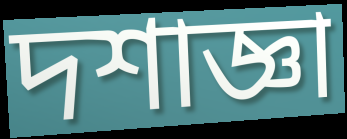
দশাজ্ঞা